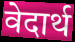
वेदार्थ